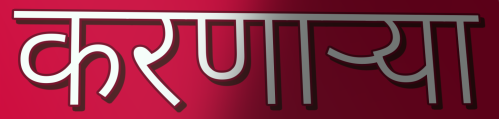
करणाऱ्या